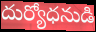
దుర్యోధనుడి